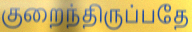
குறைந்திருப்பதே